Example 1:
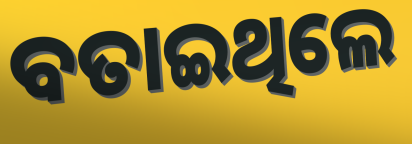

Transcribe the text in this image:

ବତାଇଥିଲେ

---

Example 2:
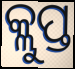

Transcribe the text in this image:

କ୍ଲୁପ୍ତ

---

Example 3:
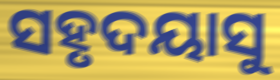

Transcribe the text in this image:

ସହୃଦୟାସୁ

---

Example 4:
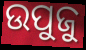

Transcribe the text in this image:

ଉପୁଜୁ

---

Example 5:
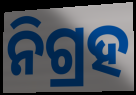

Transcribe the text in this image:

ନିଗ୍ରହ